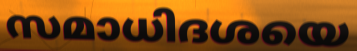
സമാധിദശയെ